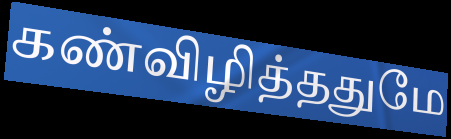
கண்விழித்ததுமே